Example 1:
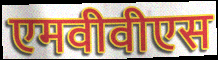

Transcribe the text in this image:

एमवीवीएस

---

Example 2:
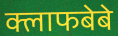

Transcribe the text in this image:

क्लाफबेबे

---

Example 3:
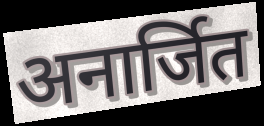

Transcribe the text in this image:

अनार्जित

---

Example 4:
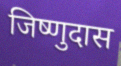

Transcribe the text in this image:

जिष्णुदास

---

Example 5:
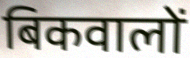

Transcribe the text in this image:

बिकवालों